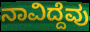
ನಾವಿದ್ದೆವು